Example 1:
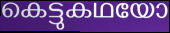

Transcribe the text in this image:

കെട്ടുകഥയോ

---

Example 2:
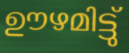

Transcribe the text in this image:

ഊഴമിട്ടു്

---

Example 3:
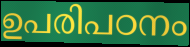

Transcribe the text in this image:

ഉപരിപഠനം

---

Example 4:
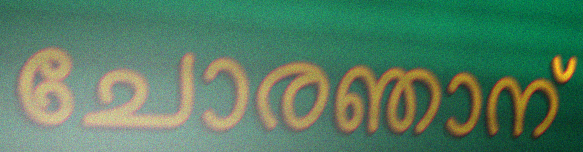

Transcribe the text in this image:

ചോരഞാന്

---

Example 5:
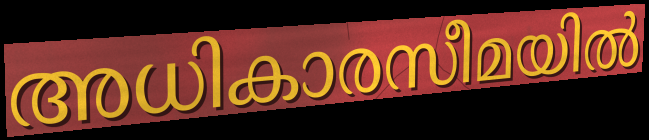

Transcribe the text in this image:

അധികാരസീമയിൽ